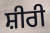
ਸ਼ੀਰੀ